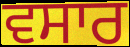
ਵਸਾਰ